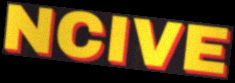
NCIVE